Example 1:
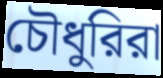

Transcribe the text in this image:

চৌধুরিরা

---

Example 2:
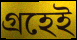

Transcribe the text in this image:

গ্রহেই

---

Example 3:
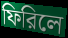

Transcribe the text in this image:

ফিরিলে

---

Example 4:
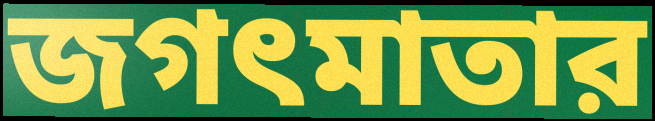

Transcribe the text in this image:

জগৎমাতার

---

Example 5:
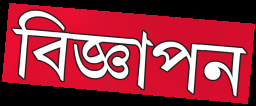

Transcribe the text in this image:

বিজ্ঞাপন